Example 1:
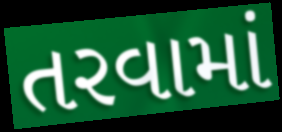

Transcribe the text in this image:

તરવામાં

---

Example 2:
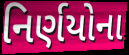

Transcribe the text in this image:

નિર્ણયોના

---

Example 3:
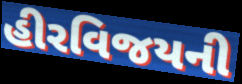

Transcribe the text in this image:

હીરવિજયની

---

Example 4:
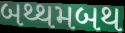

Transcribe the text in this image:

બથ્થમબથ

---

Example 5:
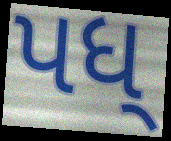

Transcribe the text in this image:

પધ્